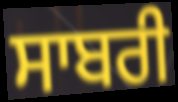
ਸਾਬਰੀ